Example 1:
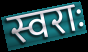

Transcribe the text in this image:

स्वराः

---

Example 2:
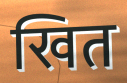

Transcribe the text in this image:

खित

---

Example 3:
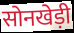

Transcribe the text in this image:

सोनखेड़ी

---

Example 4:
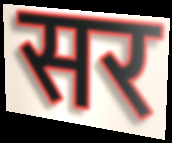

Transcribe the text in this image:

सर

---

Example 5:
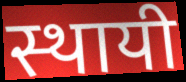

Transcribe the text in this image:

स्थायी